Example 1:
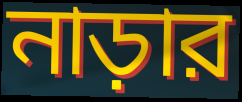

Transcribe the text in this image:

নাড়ার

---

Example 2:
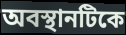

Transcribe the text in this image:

অবস্থানটিকে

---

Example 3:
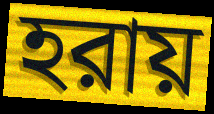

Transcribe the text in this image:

হরায়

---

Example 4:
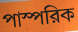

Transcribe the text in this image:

পাস্পরিক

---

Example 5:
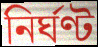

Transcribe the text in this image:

নির্ঘণ্ট